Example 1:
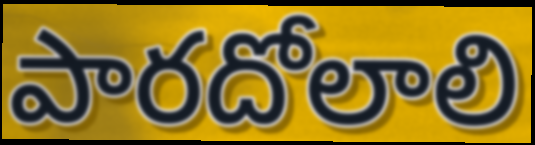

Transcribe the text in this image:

పారదోలాలి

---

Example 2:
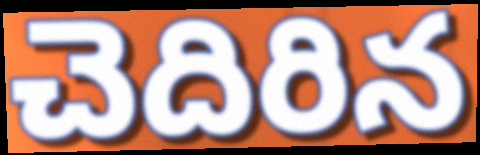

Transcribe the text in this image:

చెదిరిన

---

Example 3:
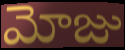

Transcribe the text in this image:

మోజు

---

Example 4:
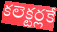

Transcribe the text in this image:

కలెక్టర్లకే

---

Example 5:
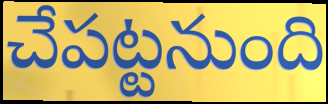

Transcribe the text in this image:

చేపట్టనుంది